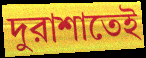
দুরাশাতেই